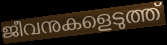
ജീവനുകളെടുത്ത്